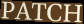
PATCH